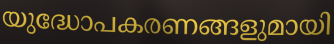
യുദ്ധോപകരണങ്ങളുമായി